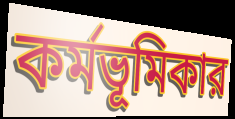
কর্মভূমিকার